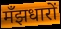
मँझधारों